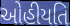
ઓહીયતિ